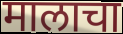
मालाचा